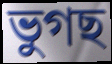
ভুগছ